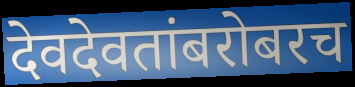
देवदेवतांबरोबरच